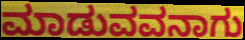
ಮಾಡುವವನಾಗು